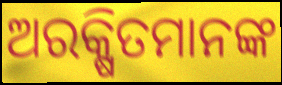
ଅରକ୍ଷିତମାନଙ୍କ